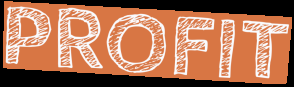
PROFIT